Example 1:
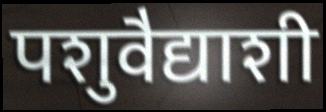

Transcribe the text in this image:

पशुवैद्याशी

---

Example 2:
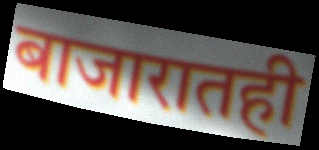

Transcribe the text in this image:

बाजारातही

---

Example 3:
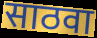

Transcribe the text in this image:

साठवा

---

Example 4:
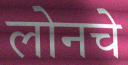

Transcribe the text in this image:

लोनचे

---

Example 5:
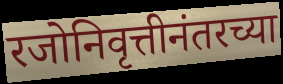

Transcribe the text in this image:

रजोनिवृत्तीनंतरच्या